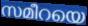
സമീറയെ